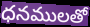
ధనములతో